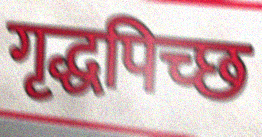
गृद्धपिच्छ